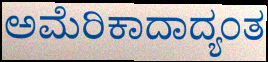
ಅಮೆರಿಕಾದಾದ್ಯಂತ